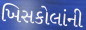
ખિસકોલાંની